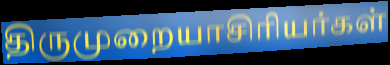
திருமுறையாசிரியர்கள்